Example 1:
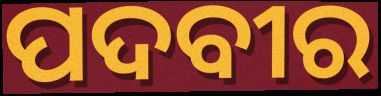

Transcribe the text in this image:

ପଦବୀର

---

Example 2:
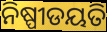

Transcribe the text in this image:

ନିଷ୍ପୀଡୟତି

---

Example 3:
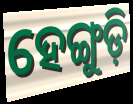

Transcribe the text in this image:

ହେଙ୍ଗୁଡ଼ି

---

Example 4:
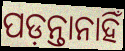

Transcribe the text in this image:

ପଡ଼ନ୍ତାନାହିଁ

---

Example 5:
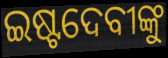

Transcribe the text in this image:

ଇଷ୍ଟଦେବୀଙ୍କୁ